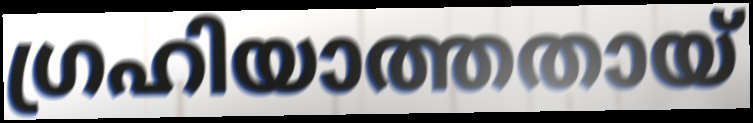
ഗ്രഹിയാത്തതായ്